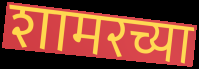
शामरच्या